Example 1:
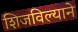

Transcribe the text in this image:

शिजविल्याने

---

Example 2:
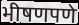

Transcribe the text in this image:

भीषणपणे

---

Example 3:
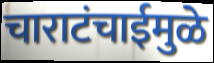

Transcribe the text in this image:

चाराटंचाईमुळे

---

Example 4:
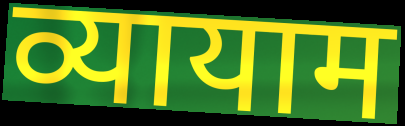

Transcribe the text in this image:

व्यायाम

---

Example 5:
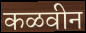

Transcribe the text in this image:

कळवीन